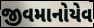
જીવમાનોયેવ